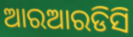
ଆରଆରଡିସି